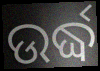
ଉର୍ଦ୍ଧ